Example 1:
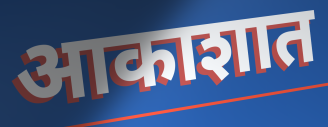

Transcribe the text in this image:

आकाशात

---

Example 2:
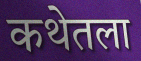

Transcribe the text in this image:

कथेतला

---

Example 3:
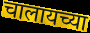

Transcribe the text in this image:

चालायच्या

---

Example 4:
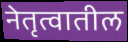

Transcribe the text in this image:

नेतृत्वातील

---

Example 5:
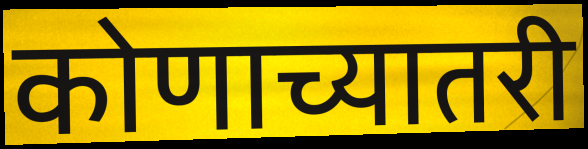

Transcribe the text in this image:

कोणाच्यातरी